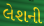
લેશની